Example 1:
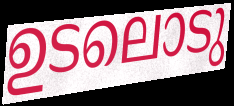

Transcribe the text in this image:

ഉടലൊടു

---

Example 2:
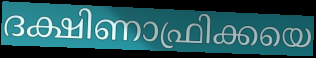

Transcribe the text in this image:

ദക്ഷിണാഫ്രിക്കയെ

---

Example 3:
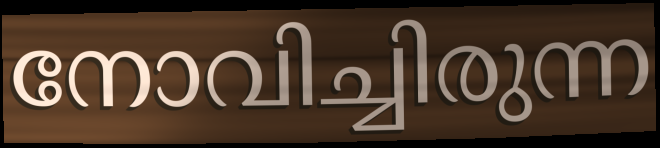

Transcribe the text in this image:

നോവിച്ചിരുന്ന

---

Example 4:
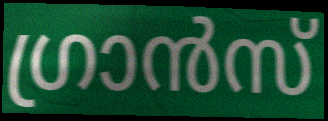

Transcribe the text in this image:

ഗ്രാൻസ്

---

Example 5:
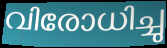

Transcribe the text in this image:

വിരോധിച്ചു